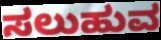
ಸಲುಹುವ